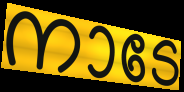
നാടേ